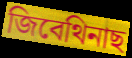
জিবেথিনাছ